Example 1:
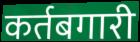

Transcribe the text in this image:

कर्तबगारी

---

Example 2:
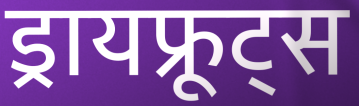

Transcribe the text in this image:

ड्रायफ्रूट्स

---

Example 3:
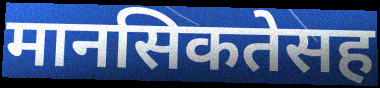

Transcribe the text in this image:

मानसिकतेसह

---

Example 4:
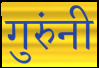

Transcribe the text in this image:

गुरुंनी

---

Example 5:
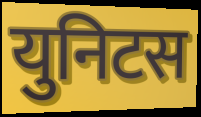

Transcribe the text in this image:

युनिटस